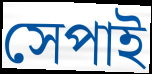
সেপাই